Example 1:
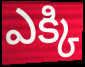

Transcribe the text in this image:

ఎక్కి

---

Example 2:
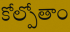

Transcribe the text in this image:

కోల్పోతాం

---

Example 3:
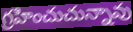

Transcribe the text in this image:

గ్రహించుచున్నావు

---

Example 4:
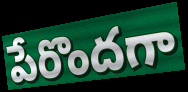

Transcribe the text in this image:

పేరొందగా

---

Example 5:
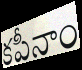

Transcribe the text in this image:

కపీనాం